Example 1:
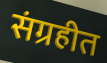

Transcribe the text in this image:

संग्रहीत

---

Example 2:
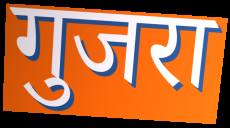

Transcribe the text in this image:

गुजरा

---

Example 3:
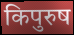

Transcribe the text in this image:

किपुरुष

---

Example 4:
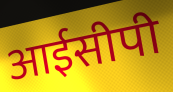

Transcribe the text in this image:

आईसीपी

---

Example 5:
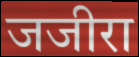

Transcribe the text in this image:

जजीरा